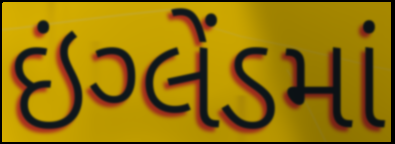
ઇંગ્લેંડમાં